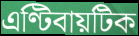
এণ্টিবায়টিক